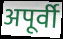
अपूर्वी